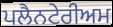
ਪਲੈਨਟੇਰੀਅਮ